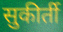
सुकीर्ती